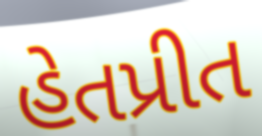
હેતપ્રીત